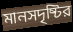
মানসদৃষ্টির